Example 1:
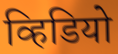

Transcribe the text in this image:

व्हिडियो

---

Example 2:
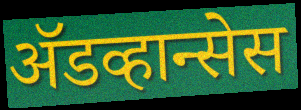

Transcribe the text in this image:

ॲडव्हान्सेस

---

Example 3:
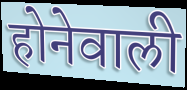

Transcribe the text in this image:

होनेवाली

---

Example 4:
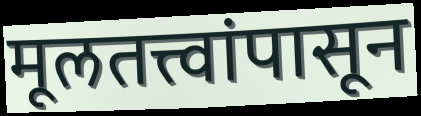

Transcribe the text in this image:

मूलतत्त्वांपासून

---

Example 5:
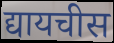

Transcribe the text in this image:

द्यायचीस